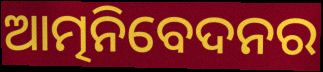
ଆତ୍ମନିବେଦନର